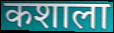
कशाला